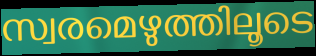
സ്വരമെഴുത്തിലൂടെ